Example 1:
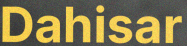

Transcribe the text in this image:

Dahisar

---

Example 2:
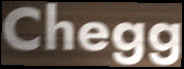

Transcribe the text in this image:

Chegg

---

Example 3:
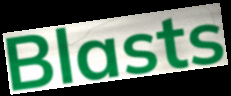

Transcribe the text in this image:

Blasts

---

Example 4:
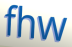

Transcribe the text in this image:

fhw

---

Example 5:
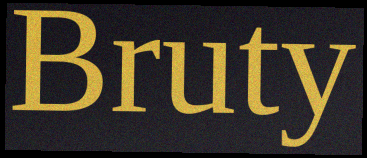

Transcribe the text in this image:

Bruty